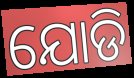
ଯୋଡି